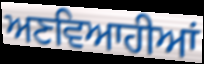
ਅਣਵਿਆਹੀਆਂ